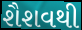
શૈશવથી